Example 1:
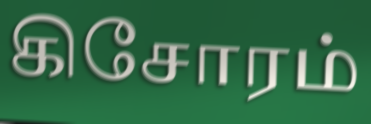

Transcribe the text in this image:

கிசோரம்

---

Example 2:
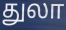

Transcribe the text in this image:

துலா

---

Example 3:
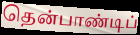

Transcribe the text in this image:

தென்பாண்டிப்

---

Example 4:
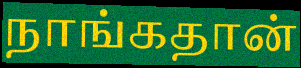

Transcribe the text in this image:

நாங்கதான்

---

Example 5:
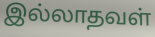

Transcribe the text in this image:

இல்லாதவள்